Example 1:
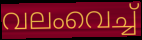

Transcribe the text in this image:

വലംവെച്ച്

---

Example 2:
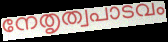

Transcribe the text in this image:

നേതൃത്വപാടവം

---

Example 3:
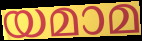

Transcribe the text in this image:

യമാമ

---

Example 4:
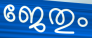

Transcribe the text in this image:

ജേതും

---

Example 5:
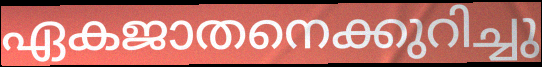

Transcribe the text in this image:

ഏകജാതനെക്കുറിച്ചു